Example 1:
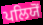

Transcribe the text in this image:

ਪਲਿਯੋਂ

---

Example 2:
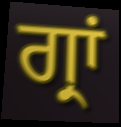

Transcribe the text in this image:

ਗ੍ਰਾਂ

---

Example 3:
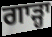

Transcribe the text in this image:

ਗਾੜ੍ਹਾ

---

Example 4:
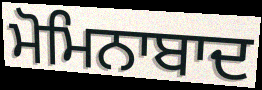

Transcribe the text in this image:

ਮੋਮਿਨਾਬਾਦ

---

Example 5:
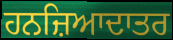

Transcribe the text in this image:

ਹਨਜ਼ਿਆਦਾਤਰ